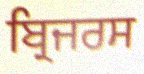
ਬ੍ਰਿਜਰਸ